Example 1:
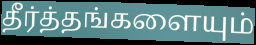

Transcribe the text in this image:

தீர்த்தங்களையும்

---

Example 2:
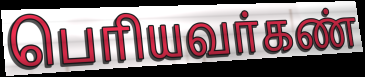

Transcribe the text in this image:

பெரியவர்கண்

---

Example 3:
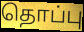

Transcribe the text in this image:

தொப்பு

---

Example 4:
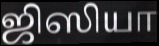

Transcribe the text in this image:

ஜிஸியா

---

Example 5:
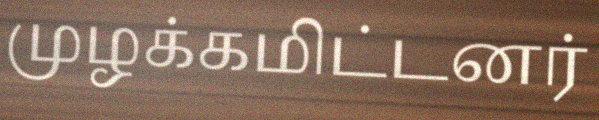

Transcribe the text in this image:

முழக்கமிட்டனர்